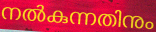
നൽകുന്നതിനും